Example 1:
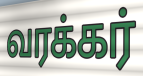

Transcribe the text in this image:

வரக்கர்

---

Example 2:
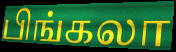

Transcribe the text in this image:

பிங்கலா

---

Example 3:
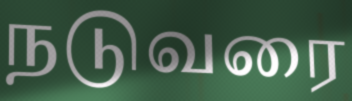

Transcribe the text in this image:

நடுவரை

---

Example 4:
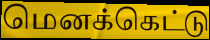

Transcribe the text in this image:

மெனக்கெட்டு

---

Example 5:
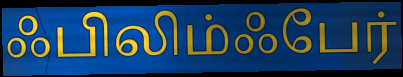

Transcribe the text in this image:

ஃபிலிம்ஃபேர்